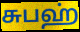
சுபஹ்